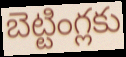
బెట్టింగ్లకు